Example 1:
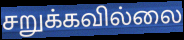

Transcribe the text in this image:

சறுக்கவில்லை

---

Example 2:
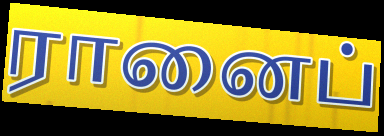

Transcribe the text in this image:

ரானைப்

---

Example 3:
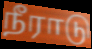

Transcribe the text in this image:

நீராடு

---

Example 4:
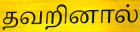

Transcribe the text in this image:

தவறினால்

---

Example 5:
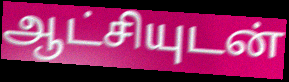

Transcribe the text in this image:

ஆட்சியுடன்